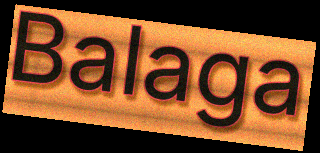
Balaga